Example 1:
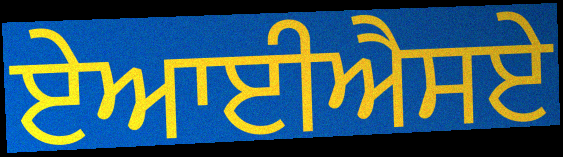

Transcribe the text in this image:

ਏਆਈਐਸਏ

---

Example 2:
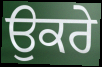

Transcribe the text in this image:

ਉਕਰੇ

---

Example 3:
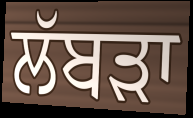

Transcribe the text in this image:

ਲੱਬੜਾ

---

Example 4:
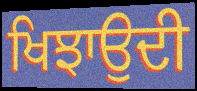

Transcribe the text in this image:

ਖਿਝਾਉਦੀ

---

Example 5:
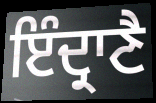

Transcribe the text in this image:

ਇੰਦ੍ਰਾਣੈ